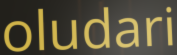
oludari